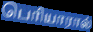
பெரியாரால்